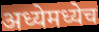
अध्येमध्येच